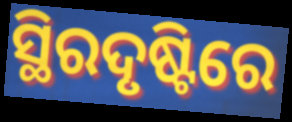
ସ୍ଥିରଦୃଷ୍ଟିରେ